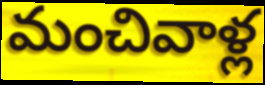
మంచివాళ్ల